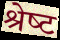
श्रेष्‍ट